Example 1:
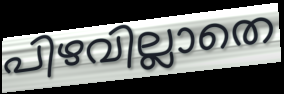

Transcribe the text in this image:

പിഴവില്ലാതെ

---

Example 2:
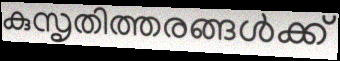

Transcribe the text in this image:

കുസൃതിത്തരങ്ങൾക്ക്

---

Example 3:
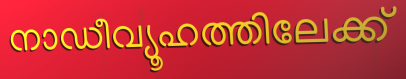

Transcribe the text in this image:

നാഡീവ്യൂഹത്തിലേക്ക്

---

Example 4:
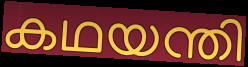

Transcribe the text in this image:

കഥയന്തി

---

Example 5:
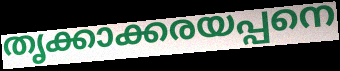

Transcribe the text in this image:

തൃക്കാക്കരയപ്പനെ